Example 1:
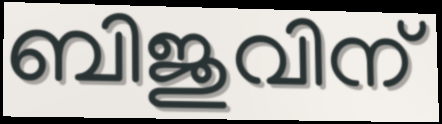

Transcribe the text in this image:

ബിജുവിന്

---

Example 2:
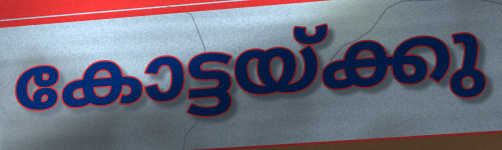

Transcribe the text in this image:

കോട്ടയ്ക്കു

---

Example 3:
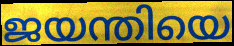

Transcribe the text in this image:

ജയന്തിയെ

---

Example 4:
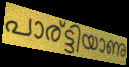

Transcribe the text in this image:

പാര്ട്ടിയാണു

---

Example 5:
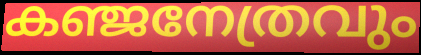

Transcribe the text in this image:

കഞ്ജനേത്രവും